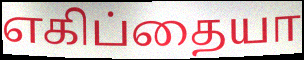
எகிப்தையா